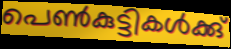
പെൺകുട്ടികൾക്കു്